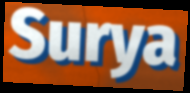
Surya